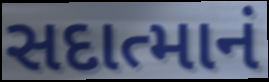
સદાત્માનં